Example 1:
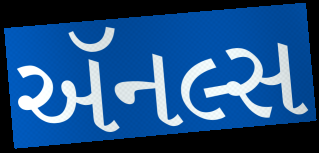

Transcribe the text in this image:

ઍનલ્સ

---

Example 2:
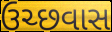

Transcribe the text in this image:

ઉચ્છવાસ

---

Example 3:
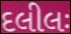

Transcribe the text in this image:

દલીલઃ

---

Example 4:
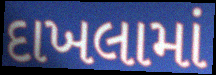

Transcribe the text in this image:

દાખલામાં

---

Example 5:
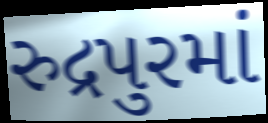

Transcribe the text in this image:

રુદ્રપુરમાં